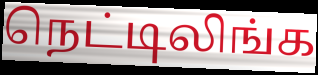
நெட்டிலிங்க